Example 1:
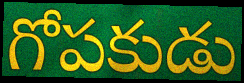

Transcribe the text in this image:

గోపకుడు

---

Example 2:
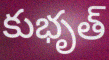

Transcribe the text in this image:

కుభృత్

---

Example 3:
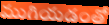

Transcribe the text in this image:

ముగియడంతో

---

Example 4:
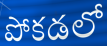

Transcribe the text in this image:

పోకడలో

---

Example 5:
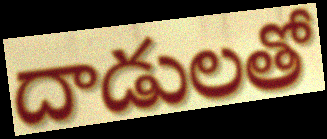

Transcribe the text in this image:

దాడులతో